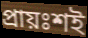
প্রায়ঃশই